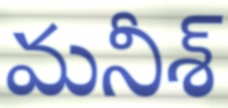
మనీశ్